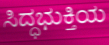
ಸಿದ್ಧಭುಕ್ತಿಯ